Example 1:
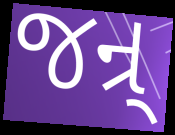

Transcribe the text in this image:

જન્ર્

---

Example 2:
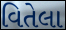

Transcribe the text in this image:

વિતેલા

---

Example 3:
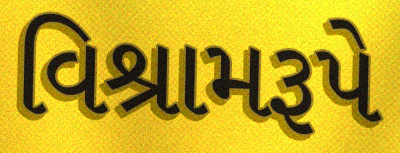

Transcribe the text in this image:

વિશ્રામરૂપે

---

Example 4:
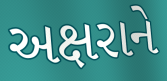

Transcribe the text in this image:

અક્ષરાને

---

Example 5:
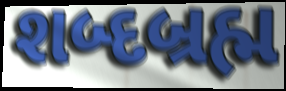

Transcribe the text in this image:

શબ્દબ્રહ્મ